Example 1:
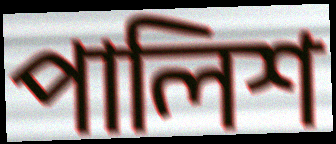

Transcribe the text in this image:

পালিশ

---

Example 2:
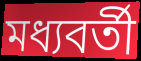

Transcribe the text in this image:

মধ্যবৰ্তী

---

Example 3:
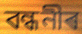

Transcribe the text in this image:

বন্ধনীৰ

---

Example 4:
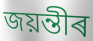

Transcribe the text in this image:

জয়ন্তীৰ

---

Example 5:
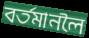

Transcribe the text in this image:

বৰ্তমানলৈ